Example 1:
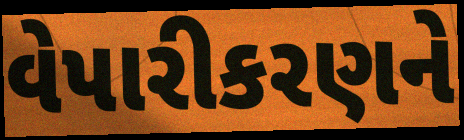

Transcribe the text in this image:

વેપારીકરણને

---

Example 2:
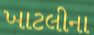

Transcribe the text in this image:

ખાટલીના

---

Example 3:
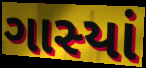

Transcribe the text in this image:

ગાસ્યાં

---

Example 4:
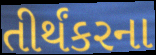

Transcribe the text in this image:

તીર્થંકરના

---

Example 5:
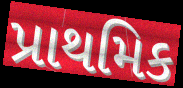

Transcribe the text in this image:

પ્રાથમિક